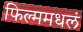
फिल्ममधलं